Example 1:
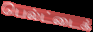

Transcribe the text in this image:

பெல்ட்டைக்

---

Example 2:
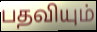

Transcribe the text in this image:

பதவியும்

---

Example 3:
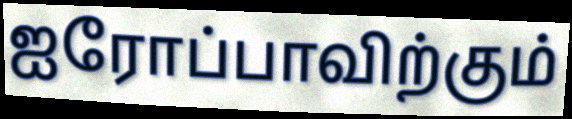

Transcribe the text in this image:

ஐரோப்பாவிற்கும்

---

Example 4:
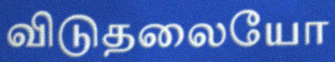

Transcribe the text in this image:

விடுதலையோ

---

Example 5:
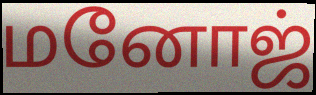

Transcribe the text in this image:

மனோஜ்